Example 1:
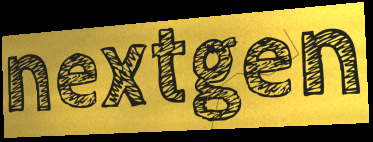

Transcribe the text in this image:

nextgen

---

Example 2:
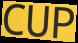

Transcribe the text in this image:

CUP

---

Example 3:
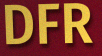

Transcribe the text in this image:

DFR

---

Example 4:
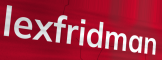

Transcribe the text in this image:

lexfridman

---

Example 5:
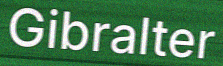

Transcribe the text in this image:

Gibralter